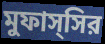
মুফাস্সির